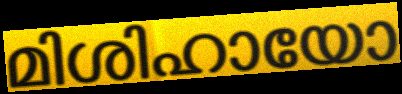
മിശിഹായോ